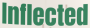
Inflected